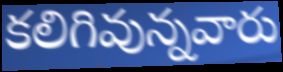
కలిగివున్నవారు